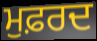
ਮੁਫ਼ਰਦ